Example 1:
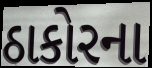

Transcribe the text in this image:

ઠાકોરના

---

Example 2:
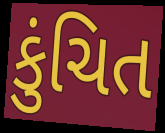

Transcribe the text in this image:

કુંચિત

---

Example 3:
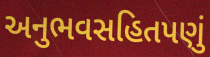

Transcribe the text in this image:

અનુભવસહિતપણું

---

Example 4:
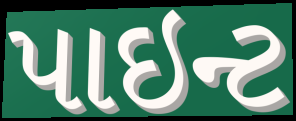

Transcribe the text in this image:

પાઇન્ટ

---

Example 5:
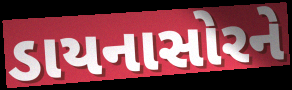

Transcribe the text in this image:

ડાયનાસોરને